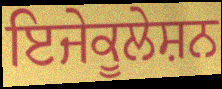
ਇਜੇਕੂਲੇਸ਼ਨ